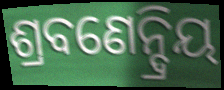
ଶ୍ରବଣେନ୍ଦ୍ରିୟ